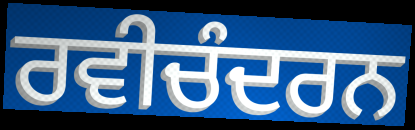
ਰਵੀਚੰਦਰਨ